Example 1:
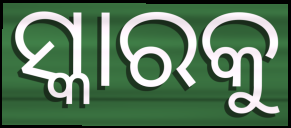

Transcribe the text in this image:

ସ୍କାରକୁ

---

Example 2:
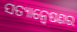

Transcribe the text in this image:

ସତ୍ୟାନ୍ୱେଷଣର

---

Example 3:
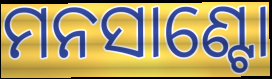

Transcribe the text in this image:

ମନସାଣ୍ଟୋ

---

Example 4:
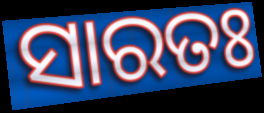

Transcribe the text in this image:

ସାରତଃ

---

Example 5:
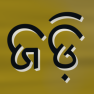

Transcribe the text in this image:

ଜଡ଼ି